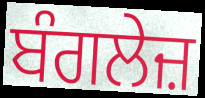
ਬੰਗਲੇਜ਼